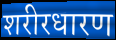
शरीरधारण